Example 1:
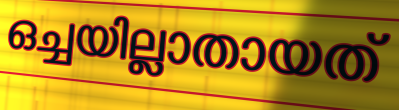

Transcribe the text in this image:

ഒച്ചയില്ലാതായത്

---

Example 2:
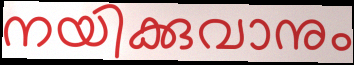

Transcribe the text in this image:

നയിക്കുവാനും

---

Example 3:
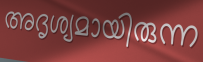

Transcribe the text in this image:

അദൃശ്യമായിരുന്ന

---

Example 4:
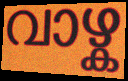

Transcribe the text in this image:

വാഴ്ക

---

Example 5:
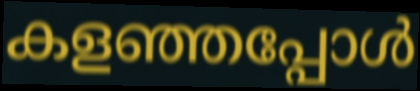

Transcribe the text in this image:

കളഞ്ഞപ്പോൾ